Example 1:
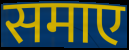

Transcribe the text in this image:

समाए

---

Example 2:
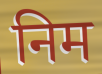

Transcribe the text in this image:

निम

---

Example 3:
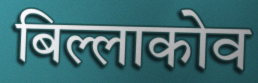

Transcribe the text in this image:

बिल्लाकोव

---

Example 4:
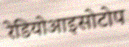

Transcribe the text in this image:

रेडियोआइसोटोप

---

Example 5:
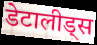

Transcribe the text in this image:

डेटालीड्स